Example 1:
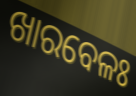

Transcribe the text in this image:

ଖାରବେଳଃ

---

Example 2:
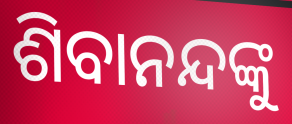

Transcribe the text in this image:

ଶିବାନନ୍ଦଙ୍କୁ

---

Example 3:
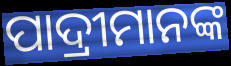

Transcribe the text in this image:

ପାଦ୍ରୀମାନଙ୍କ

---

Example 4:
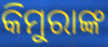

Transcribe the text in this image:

କିମୁରାଙ୍କ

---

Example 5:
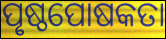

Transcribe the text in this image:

ପୃଷ୍ଠପୋଷକତା